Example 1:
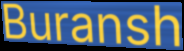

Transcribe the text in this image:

Buransh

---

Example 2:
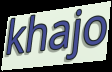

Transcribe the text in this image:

khajo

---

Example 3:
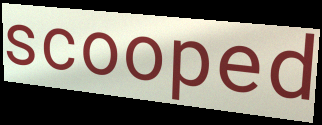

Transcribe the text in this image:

scooped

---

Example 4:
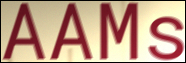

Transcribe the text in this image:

AAMs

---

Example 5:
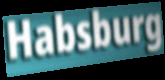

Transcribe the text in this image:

Habsburg